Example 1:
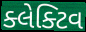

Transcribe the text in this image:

ક્લેક્ટિવ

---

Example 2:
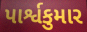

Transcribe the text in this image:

પાર્શ્વકુમાર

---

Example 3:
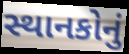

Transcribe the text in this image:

સ્થાનકોનું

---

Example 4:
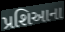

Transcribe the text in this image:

પ્રશિઆના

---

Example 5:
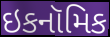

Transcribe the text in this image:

ઇકનૉમિક